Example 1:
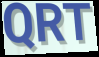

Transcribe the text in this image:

QRT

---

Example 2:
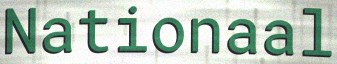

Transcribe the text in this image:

Nationaal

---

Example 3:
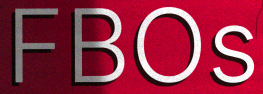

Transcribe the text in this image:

FBOs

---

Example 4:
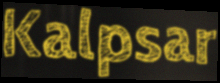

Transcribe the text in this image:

Kalpsar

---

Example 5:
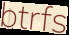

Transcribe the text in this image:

btrfs